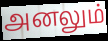
அனலும்